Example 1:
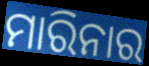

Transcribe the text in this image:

ମାରିନାର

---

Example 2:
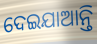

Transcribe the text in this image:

ଦେଇଯାଆନ୍ତି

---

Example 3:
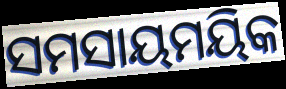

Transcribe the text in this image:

ସମସାୟମୟିକ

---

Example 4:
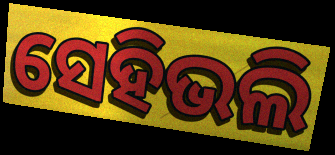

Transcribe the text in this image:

ସେହିଭଲି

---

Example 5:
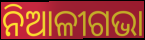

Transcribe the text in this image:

ନିଆଳୀଗଭା